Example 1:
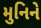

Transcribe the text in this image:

મુનિને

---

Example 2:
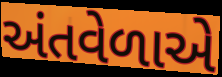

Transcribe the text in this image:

અંતવેળાએ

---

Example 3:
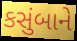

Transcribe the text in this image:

કસુંબાને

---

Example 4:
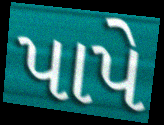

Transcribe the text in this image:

પાપે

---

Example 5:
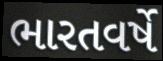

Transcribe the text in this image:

ભારતવર્ષે